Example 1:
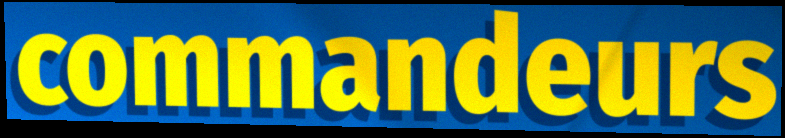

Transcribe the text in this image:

commandeurs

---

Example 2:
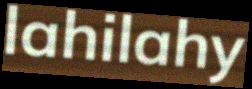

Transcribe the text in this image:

lahilahy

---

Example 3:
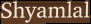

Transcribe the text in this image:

Shyamlal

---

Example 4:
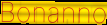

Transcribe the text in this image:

Bonanno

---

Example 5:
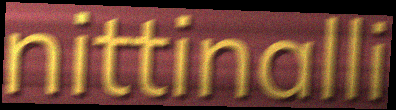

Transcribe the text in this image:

nittinalli